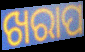
ଖରାପ